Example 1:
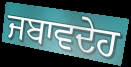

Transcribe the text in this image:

ਜਬਾਵਦੇਹ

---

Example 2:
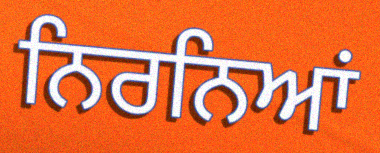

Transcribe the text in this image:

ਨਿਰਨਿਆਂ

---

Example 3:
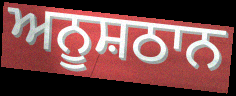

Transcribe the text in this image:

ਅਨੂਸ਼ਠਾਨ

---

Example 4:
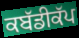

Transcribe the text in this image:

ਕਬੱਡੀਕੱਪ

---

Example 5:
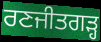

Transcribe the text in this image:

ਰਣਜੀਤਗੜ੍ਹ